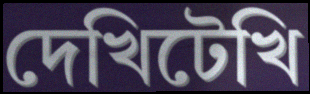
দেখিটেখি